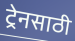
ट्रेनसाठी